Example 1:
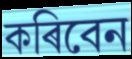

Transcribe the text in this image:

কৰিবেন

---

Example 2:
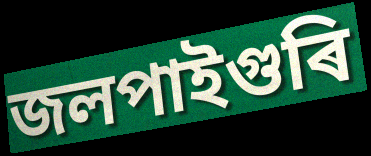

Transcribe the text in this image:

জলপাইগুৰি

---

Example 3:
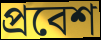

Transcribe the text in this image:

প্ৰবেশ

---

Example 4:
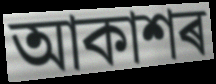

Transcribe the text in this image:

আকাশৰ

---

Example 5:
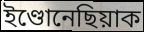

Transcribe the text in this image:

ইণ্ডোনেছিয়াক